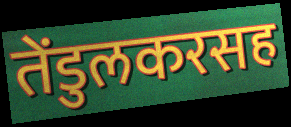
तेंडुलकरसह